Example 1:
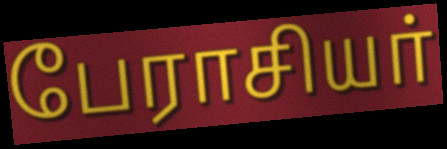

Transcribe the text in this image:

பேராசியர்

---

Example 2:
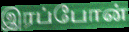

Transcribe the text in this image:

இரப்போன்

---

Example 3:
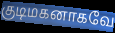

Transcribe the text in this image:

குடிமகனாகவே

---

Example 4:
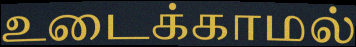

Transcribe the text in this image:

உடைக்காமல்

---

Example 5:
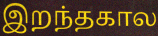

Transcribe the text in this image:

இறந்தகால